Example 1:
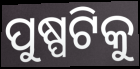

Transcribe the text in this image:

ପୁଷ୍ପଟିକୁ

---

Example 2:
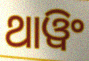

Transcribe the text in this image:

ଥାୱିଂ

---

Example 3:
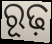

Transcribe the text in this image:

ରୂଢ଼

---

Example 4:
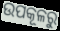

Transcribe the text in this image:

ଉପକୂଳରୁ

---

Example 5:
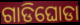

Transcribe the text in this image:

ଗାଡିଘୋଡା